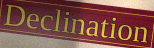
Declination